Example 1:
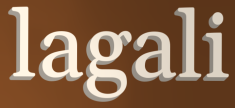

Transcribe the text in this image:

lagali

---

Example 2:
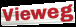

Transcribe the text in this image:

Vieweg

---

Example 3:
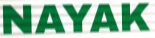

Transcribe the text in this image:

NAYAK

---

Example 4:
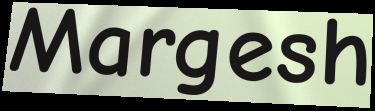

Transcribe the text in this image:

Margesh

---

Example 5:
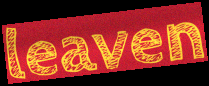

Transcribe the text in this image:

leaven